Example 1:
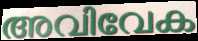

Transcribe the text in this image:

അവിവേക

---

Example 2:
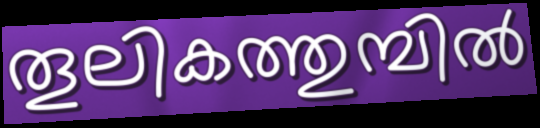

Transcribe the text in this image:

തൂലികത്തുമ്പിൽ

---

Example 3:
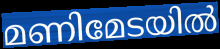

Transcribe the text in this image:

മണിമേടയിൽ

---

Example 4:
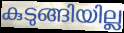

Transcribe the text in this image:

കുടുങ്ങിയില്ല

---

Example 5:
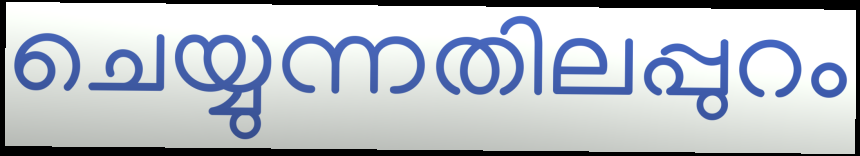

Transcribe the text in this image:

ചെയ്യുന്നതിലപ്പുറം